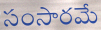
సంసారమే